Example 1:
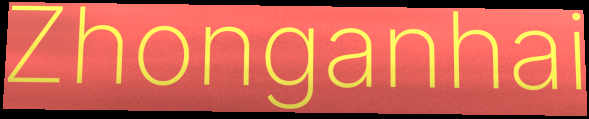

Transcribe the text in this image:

Zhonganhai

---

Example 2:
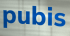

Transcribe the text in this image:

pubis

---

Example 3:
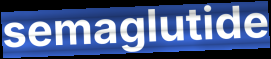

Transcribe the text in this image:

semaglutide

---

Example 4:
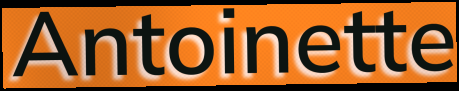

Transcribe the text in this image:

Antoinette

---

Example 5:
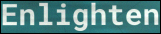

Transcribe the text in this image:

Enlighten